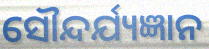
ସୌନ୍ଦର୍ଯ୍ୟଜ୍ଞାନ